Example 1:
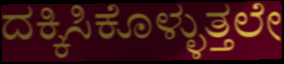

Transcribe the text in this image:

ದಕ್ಕಿಸಿಕೊಳ್ಳುತ್ತಲೇ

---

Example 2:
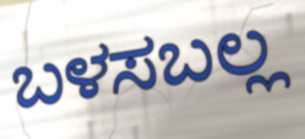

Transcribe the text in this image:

ಬಳಸಬಲ್ಲ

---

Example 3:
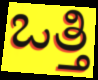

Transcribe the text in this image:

ಒತ್ತಿ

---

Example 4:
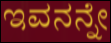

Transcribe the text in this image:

ಇವನನ್ನೇ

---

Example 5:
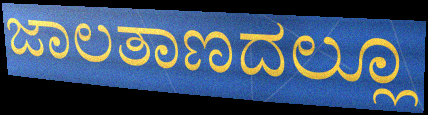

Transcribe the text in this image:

ಜಾಲತಾಣದಲ್ಲೂ